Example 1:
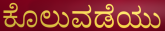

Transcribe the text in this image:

ಕೊಲುವಡೆಯು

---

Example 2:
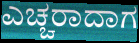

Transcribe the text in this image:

ಎಚ್ಚರಾದಾಗ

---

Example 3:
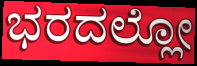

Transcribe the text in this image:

ಭರದಲ್ಲೋ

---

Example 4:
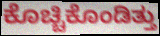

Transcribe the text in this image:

ಕೊಚ್ಚಿಕೊಂಡಿತ್ತು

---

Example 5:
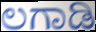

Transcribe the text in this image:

ಲಗಾಡಿ